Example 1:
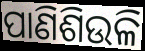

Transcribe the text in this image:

ପାଣିଶିଉଳି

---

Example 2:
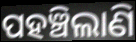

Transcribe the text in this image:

ପହଞ୍ଚିଲାଣି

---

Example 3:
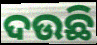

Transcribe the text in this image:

ଦଉଛି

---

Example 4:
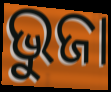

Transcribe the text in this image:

ଭୁଜା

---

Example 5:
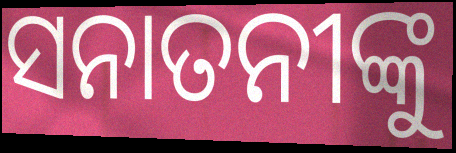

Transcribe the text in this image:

ସନାତନୀଙ୍କୁ